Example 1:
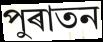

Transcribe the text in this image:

পুৰাতন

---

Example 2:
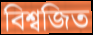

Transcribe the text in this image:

বিশ্বজিত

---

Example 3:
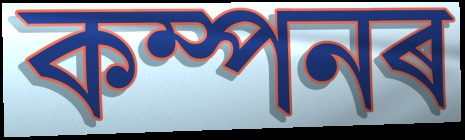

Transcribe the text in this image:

কম্পনৰ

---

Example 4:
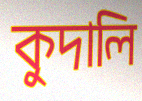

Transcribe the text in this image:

কুদালি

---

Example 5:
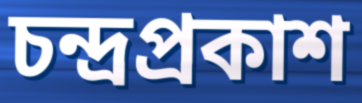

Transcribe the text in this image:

চন্দ্ৰপ্ৰকাশ